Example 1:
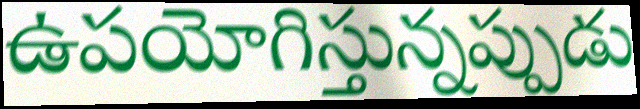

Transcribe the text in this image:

ఉపయోగిస్తున్నప్పుడు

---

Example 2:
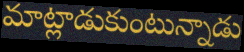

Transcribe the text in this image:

మాట్లాడుకుంటున్నాడు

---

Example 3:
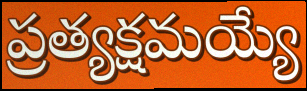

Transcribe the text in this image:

ప్రత్యక్షమయ్యే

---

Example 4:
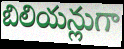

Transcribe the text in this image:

బిలియన్లుగా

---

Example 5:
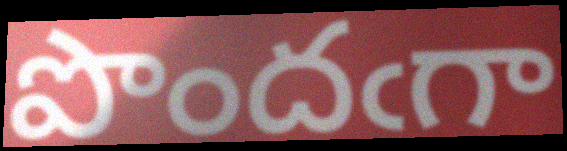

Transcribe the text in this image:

పొందఁగా